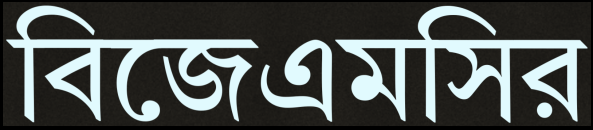
বিজেএমসির